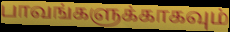
பாவங்களுக்காகவும்